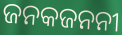
ଜନକଜନନୀ